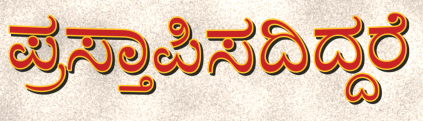
ಪ್ರಸ್ತಾಪಿಸದಿದ್ದರೆ